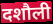
दशौली